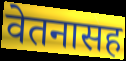
वेतनासह